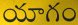
యాగం